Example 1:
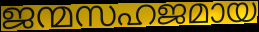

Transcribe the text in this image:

ജന്മസഹജമായ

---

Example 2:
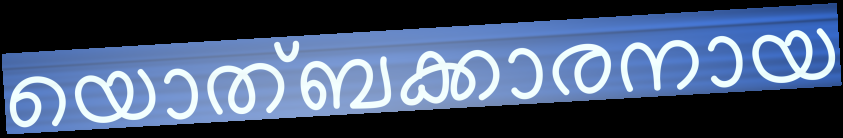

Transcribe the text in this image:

യൊത്ബക്കാരനായ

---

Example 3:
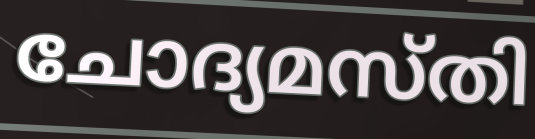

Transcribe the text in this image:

ചോദ്യമസ്തി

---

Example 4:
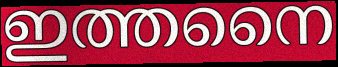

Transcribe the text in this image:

ഇത്തനൈ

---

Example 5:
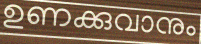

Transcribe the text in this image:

ഉണക്കുവാനും